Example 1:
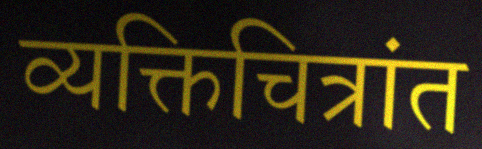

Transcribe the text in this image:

व्यक्तिचित्रांत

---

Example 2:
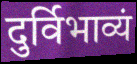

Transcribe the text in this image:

दुर्विभाव्यं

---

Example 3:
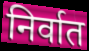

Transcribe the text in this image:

निर्वात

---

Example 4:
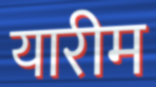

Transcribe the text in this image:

यारीम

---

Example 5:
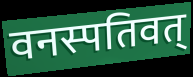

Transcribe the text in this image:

वनस्पतिवत्